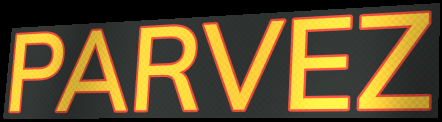
PARVEZ